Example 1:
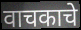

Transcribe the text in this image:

वाचकाचे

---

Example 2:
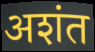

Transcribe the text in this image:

अशंत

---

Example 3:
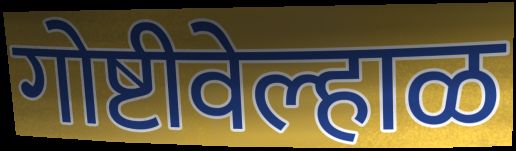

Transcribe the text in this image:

गोष्टीवेल्हाळ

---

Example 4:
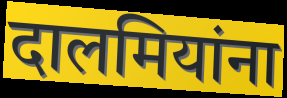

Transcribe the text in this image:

दालमियांना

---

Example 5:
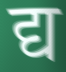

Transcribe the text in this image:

द्य